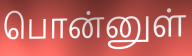
பொன்னுள்